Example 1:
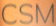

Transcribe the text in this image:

CSM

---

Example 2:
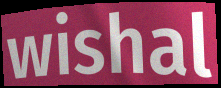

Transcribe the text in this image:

wishal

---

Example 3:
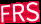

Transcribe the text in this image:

FRS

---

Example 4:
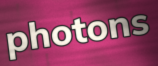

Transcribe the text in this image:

photons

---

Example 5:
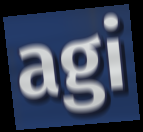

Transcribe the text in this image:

agi